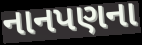
નાનપણના